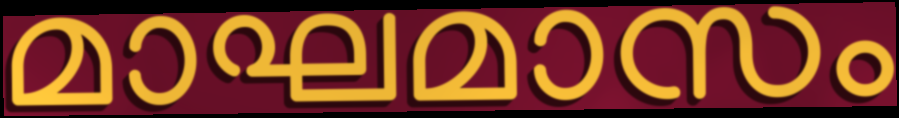
മാഘമാസം